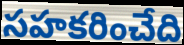
సహకరించేది